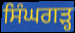
ਸਿੰਘਗੜ੍ਹ